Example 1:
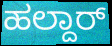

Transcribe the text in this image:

ಹಲ್ದಾರ್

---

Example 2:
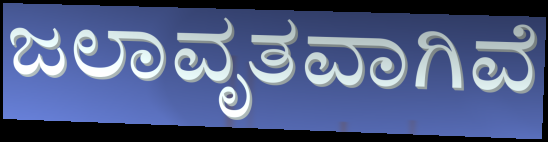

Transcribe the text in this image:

ಜಲಾವೃತವಾಗಿವೆ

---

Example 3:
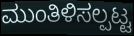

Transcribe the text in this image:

ಮುಂತಿಳಿಸಲ್ಪಟ್ಟ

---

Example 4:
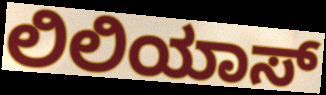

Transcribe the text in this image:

ಲಿಲಿಯಾಸ್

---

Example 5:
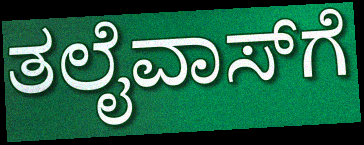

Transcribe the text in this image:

ತಲೈವಾಸ್‌ಗೆ